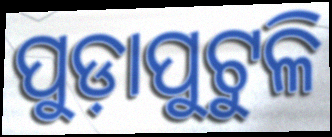
ପୁଡ଼ାପୁଟୁଳି